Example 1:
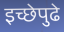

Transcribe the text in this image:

इच्छेपुढे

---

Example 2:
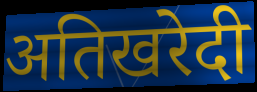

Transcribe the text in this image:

अतिखरेदी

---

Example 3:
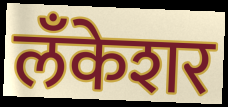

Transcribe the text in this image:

लँकेशर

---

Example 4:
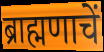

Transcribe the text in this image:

ब्राह्मणाचें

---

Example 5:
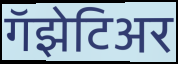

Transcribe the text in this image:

गॅझेटिअर